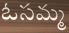
ఓసమ్మ